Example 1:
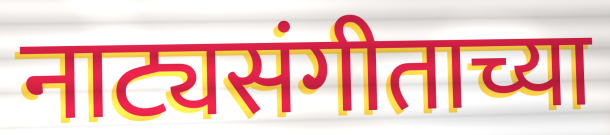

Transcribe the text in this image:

नाट्यसंगीताच्या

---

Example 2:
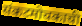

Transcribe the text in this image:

संकटमोचकाची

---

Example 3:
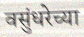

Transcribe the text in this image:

वसुंधरेच्या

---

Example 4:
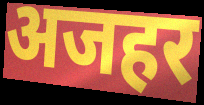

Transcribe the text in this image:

अजहर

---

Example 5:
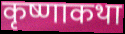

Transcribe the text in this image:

कृष्णाकथा